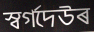
স্বৰ্গদেউৰ